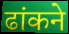
ढांकने